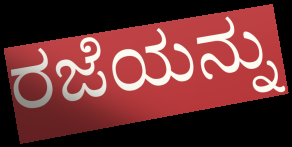
ರಜೆಯನ್ನು